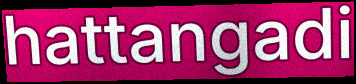
hattangadi